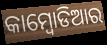
କାମ୍ବୋଡିଆର